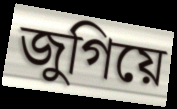
জুগিয়ে